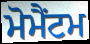
ਮੋਮੈਂਟਮ